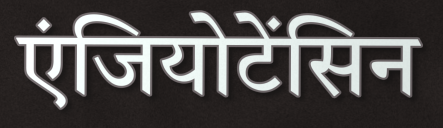
एंजियोटेंसिन